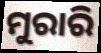
ମୁରାରି